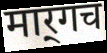
मार्गच